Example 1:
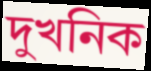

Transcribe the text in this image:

দুখনিক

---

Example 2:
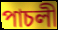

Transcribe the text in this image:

পাচলী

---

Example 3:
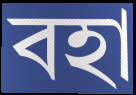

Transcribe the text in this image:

বহা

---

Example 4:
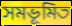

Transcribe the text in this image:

সমভূমিত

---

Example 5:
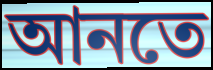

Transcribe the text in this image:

আনতে